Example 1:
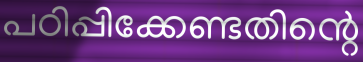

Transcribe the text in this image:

പഠിപ്പിക്കേണ്ടതിന്റെ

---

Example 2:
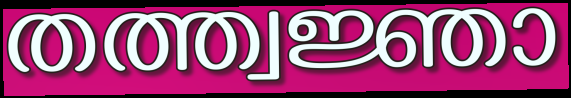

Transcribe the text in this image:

തത്ത്വജ്ഞാ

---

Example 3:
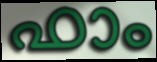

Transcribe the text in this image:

ഫാം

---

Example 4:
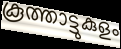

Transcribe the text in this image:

കൂത്താട്ടുകുളം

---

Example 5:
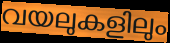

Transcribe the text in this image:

വയലുകളിലും